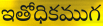
ఇతోధికముగ